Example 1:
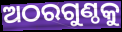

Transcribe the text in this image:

ଅଠରଗୁଣ୍ଠକୁ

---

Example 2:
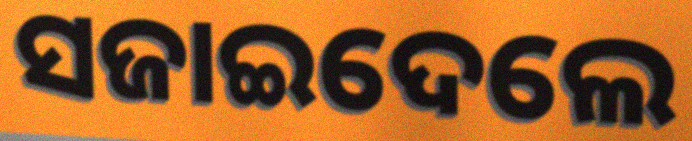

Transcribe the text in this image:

ସଜାଇଦେଲେ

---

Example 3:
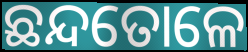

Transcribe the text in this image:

ଛନ୍ଦତୋଳେ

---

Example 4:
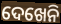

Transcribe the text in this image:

ଦେଖେନି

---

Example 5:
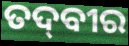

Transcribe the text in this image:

ତଦ୍‌ବୀର